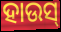
ହାଉସ୍